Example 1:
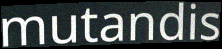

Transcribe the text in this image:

mutandis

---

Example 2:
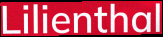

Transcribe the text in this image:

Lilienthal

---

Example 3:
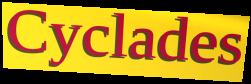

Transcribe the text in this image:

Cyclades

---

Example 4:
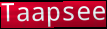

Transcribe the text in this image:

Taapsee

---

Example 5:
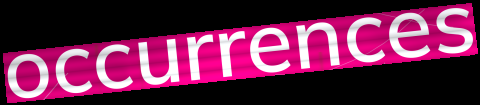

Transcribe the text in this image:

occurrences